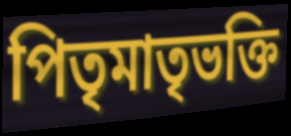
পিতৃমাতৃভক্তি